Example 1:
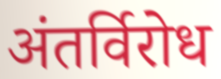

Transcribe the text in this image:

अंतर्विरोध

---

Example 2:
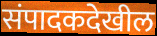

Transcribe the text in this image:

संपादकदेखील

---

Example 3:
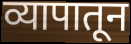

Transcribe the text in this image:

व्यापातून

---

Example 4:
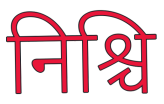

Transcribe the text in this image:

निश्चि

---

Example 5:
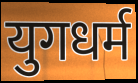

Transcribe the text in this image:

युगधर्म